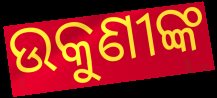
ଉକୁଣୀଙ୍କ